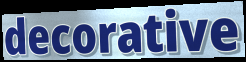
decorative